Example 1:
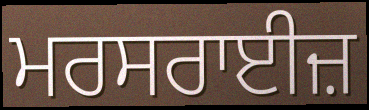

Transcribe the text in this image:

ਮਰਸਰਾਈਜ਼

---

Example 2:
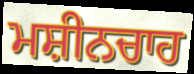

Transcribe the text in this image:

ਮਸ਼ੀਨਚਾਹ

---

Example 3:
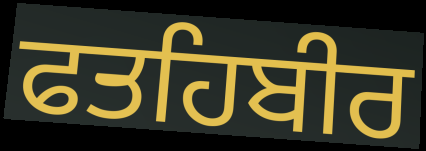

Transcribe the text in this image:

ਫਤਹਿਬੀਰ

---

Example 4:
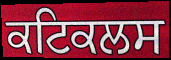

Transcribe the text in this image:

ਕਟਿਕਲਸ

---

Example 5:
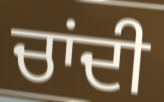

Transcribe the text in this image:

ਚਾਂਦੀ